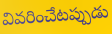
వివరించేటప్పుడు